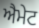
ਐਮੇਟ